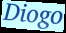
Diogo